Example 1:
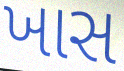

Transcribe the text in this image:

ખાસ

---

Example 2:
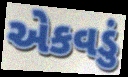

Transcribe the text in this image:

એકવડું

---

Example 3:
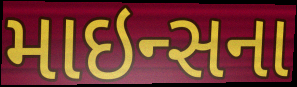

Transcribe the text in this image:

માઇન્સના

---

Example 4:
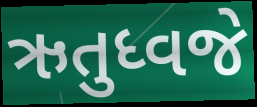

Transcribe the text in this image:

ઋતુધ્વજે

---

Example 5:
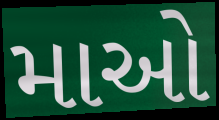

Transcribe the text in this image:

માઓ